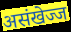
असंखेज्ज